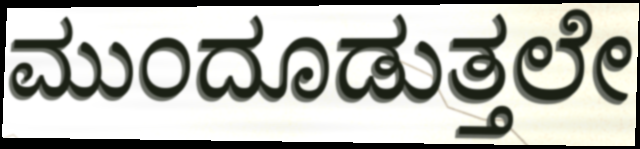
ಮುಂದೂಡುತ್ತಲೇ